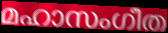
മഹാസംഗീത